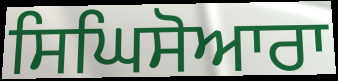
ਸਿਘਿਸੋਆਰਾ